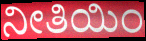
ನೀತಿಯಿಂ